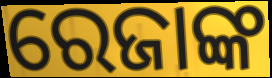
ରେଜାଙ୍କ